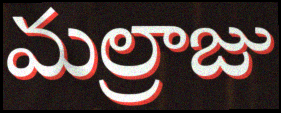
మల్రాజు